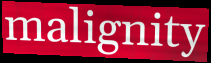
malignity